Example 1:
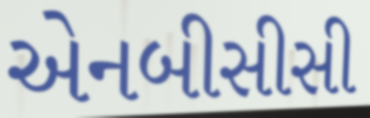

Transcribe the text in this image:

એનબીસીસી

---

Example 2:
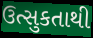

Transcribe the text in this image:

ઉત્સુકતાથી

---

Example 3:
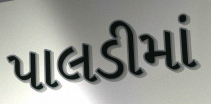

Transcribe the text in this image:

પાલડીમાં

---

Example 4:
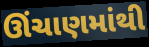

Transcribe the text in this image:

ઊંચાણમાંથી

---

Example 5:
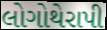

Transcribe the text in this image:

લોગોથેરાપી